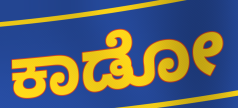
ಕಾಡೋ